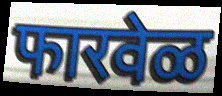
फारवेळ